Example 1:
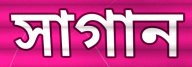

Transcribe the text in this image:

সাগান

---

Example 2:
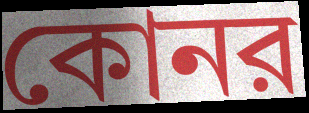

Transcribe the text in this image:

কোনর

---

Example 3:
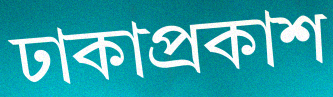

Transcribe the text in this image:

ঢাকাপ্রকাশ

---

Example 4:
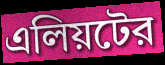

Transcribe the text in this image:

এলিয়টের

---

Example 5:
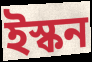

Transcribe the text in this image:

ইস্কন